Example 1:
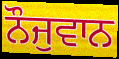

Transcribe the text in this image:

ਨੌਜੁਵਾਨ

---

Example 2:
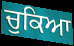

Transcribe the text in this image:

ਚੁਕਿਆ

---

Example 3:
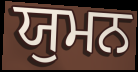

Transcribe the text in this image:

ਯੁਮਨ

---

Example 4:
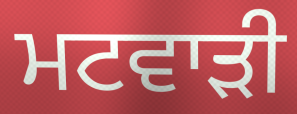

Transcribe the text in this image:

ਮਟਵਾੜੀ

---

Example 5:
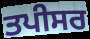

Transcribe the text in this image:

ਤਪੀਸਰ